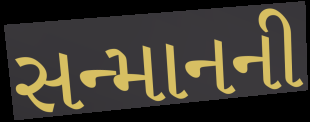
સન્માનની